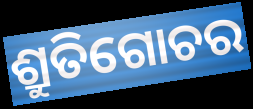
ଶ୍ରୁତିଗୋଚର